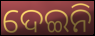
ଦେଇନି